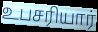
உபசரியார்